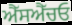
ਐੱਸਐੱਚਓ